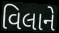
વિલાને